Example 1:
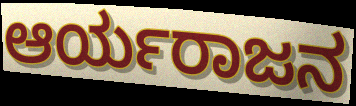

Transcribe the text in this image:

ಆರ್ಯರಾಜನ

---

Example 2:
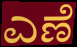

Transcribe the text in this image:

ಎಣೆ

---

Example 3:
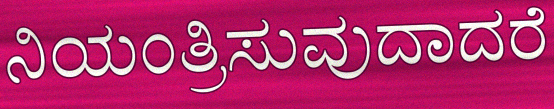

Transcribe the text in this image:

ನಿಯಂತ್ರಿಸುವುದಾದರೆ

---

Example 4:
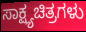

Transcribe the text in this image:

ಸಾಕ್ಷ್ಯಚಿತ್ರಗಳು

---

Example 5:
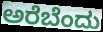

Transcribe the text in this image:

ಅರೆಬೆಂದು